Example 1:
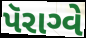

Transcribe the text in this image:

પૅરાગ્વે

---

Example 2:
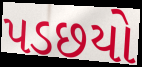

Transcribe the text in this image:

પડછયો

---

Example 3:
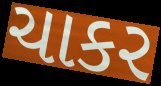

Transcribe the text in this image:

ચાકર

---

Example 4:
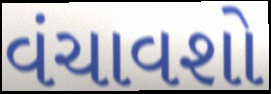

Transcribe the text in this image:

વંચાવશો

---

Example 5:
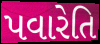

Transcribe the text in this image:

પવારેતિ